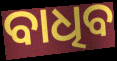
ବାଧିବ